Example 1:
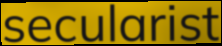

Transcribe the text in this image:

secularist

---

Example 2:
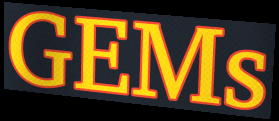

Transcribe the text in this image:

GEMs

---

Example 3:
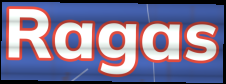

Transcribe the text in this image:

Ragas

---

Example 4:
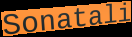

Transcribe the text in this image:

Sonatali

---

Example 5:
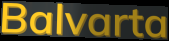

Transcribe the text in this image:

Balvarta